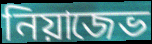
নিয়াজেভ